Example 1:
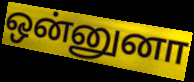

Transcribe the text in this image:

ஒன்னுனா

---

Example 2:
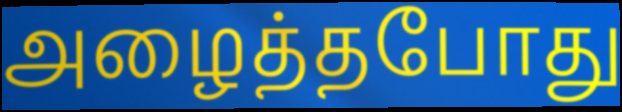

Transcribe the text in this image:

அழைத்தபோது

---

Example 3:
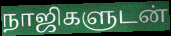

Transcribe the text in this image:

நாஜிகளுடன்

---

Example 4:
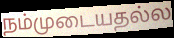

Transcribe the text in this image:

நம்முடையதல்ல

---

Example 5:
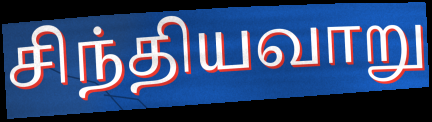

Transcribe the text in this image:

சிந்தியவாறு